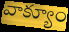
వాక్యూం